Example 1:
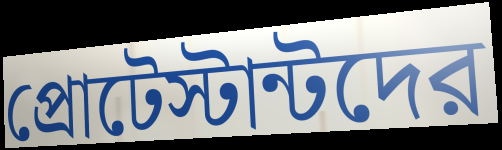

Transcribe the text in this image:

প্রোটেস্টান্টদের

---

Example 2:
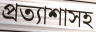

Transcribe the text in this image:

প্রত্যাশাসহ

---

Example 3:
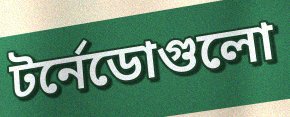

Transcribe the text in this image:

টর্নেডোগুলো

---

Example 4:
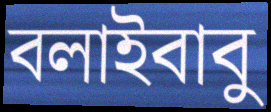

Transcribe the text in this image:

বলাইবাবু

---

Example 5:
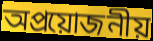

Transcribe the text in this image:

অপ্রয়োজনীয়